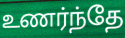
உணர்ந்தே